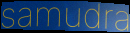
samudra